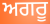
ਅਗਰੂ